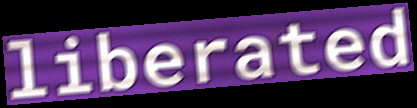
liberated